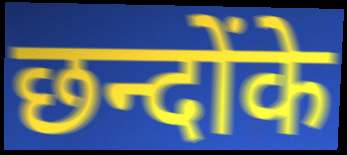
छन्दोंके